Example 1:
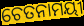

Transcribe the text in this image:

ଚେତନାମୟୀ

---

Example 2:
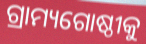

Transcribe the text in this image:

ଗ୍ରାମ୍ୟଗୋଷ୍ଠୀକୁ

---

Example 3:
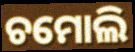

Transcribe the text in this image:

ଚମୋଲି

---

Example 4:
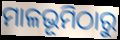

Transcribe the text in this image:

ମାଳଭୂମିଠାରୁ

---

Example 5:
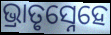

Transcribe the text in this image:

ଭ୍ରାତୃସ୍ନେହେ